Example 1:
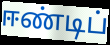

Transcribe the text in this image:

ஈண்டிப்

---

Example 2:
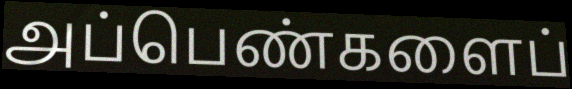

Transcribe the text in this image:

அப்பெண்களைப்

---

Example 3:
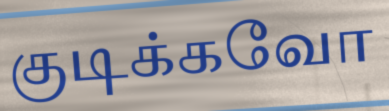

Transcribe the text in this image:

குடிக்கவோ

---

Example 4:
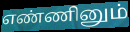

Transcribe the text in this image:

எண்ணினும்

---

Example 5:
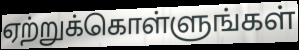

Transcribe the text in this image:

ஏற்றுக்கொள்ளுங்கள்